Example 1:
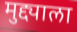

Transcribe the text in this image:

मुद्द्याला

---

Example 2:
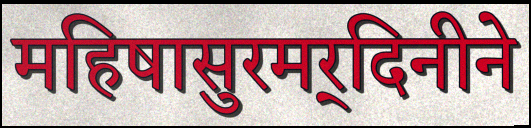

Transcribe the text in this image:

महिषासुरमर्दिनीने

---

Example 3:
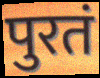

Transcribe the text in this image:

पुरतं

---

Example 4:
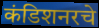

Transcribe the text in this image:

कंडिशनरचे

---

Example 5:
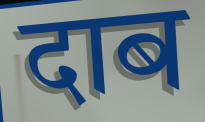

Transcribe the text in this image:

दाब